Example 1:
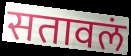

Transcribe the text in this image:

सतावलं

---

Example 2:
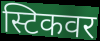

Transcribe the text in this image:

स्टिकवर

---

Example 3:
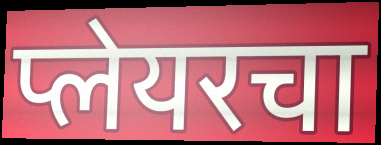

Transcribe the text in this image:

प्लेयरचा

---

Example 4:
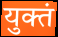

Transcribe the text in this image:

युक्तं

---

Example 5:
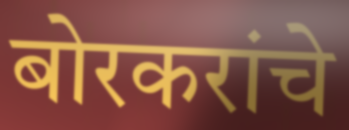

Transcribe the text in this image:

बोरकरांचे